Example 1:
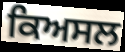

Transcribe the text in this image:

ਕਿਅਸਲ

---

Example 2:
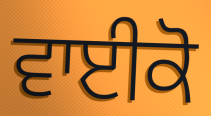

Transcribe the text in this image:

ਵਾਈਕੋ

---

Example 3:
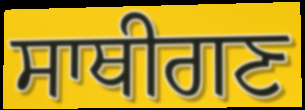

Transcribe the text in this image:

ਸਾਥੀਗਣ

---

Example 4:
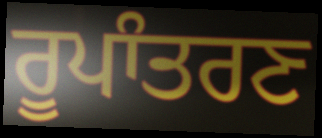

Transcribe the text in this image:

ਰੂਪਾੰਤਰਣ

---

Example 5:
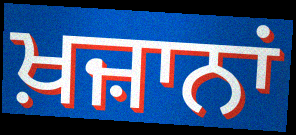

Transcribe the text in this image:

ਖ਼ਜ਼ਾਨਾਂ